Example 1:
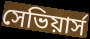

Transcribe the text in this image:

সেভিয়ার্স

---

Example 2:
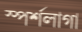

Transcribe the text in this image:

স্পর্শলাগা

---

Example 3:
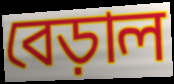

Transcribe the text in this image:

বেড়াল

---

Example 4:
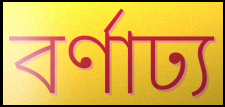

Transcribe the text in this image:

বর্ণাঢ্য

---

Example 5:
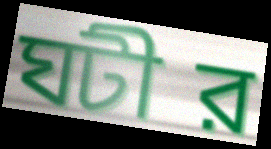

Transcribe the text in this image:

ঘটীর